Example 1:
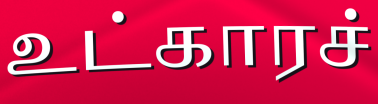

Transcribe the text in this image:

உட்காரச்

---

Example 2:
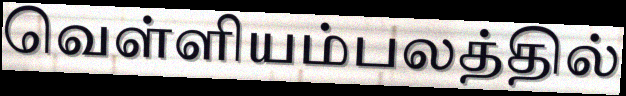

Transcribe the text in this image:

வெள்ளியம்பலத்தில்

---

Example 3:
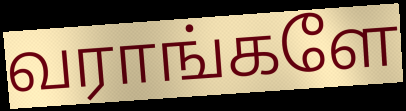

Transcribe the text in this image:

வராங்களே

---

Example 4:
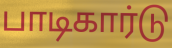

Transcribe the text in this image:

பாடிகார்டு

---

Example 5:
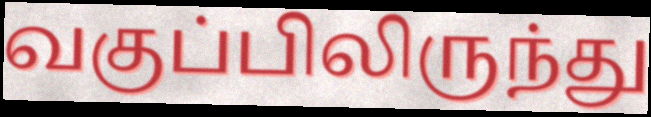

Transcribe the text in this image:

வகுப்பிலிருந்து